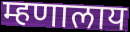
म्हणालाय